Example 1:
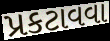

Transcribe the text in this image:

પ્રકટાવવા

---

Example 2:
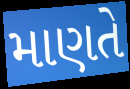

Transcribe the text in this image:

માણતે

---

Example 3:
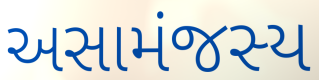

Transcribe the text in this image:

અસામંજસ્ય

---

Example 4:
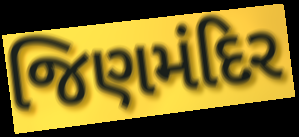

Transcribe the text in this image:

જિણમંદિર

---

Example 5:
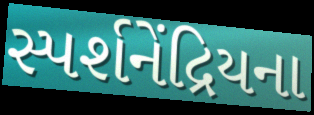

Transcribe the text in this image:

સ્પર્શનેંદ્રિયના